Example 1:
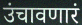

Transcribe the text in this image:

उंचावणारं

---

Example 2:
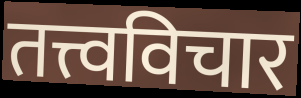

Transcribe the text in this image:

तत्त्वविचार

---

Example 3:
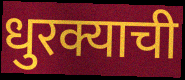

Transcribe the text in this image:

धुरक्याची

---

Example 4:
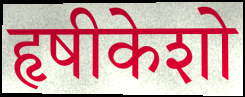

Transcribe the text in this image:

हृषीकेशो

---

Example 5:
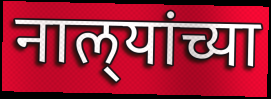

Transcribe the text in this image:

नाल्यांच्या